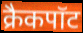
क्रैकपॉट